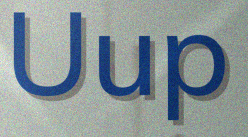
Uup